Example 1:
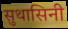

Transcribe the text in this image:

सुथासिनी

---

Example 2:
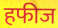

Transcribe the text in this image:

हफीज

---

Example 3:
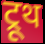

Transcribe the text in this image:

ट्रूथ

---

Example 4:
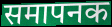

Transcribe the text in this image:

समापनक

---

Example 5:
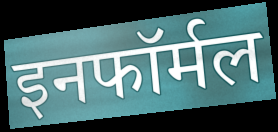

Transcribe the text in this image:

इनफॉर्मल